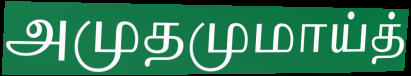
அமுதமுமாய்த்